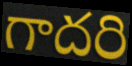
గాదరి